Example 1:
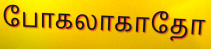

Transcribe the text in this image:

போகலாகாதோ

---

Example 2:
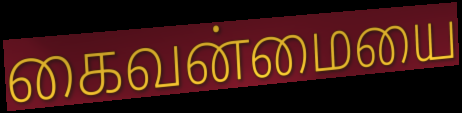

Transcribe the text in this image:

கைவன்மையை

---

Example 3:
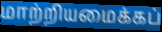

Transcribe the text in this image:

மாற்றியமைக்கப்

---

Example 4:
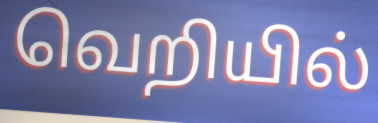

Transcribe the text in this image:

வெறியில்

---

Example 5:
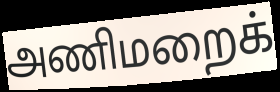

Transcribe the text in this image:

அணிமறைக்